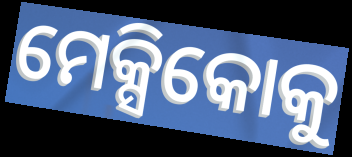
ମେକ୍ସିକୋକୁ